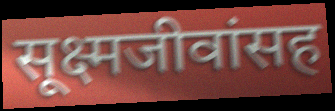
सूक्ष्मजीवांसह